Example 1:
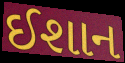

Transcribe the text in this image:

ઈશાન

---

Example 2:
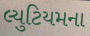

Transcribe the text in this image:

લ્યુટિયમના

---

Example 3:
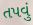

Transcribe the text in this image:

તપવું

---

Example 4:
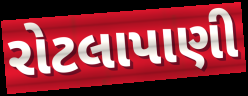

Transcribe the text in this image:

રોટલાપાણી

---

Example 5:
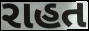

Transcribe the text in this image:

રાહત